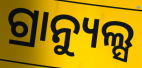
ଗ୍ରାନ୍ୟୁଲ୍ସ